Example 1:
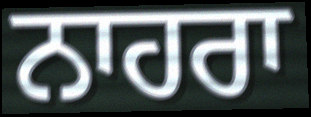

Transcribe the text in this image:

ਨਾਹਰਾ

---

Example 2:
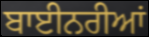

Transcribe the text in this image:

ਬਾਈਨਰੀਆਂ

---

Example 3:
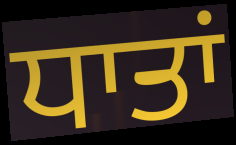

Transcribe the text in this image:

ਧਾਤਾਂ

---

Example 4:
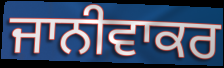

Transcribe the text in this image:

ਜਾਨੀਵਾਕਰ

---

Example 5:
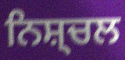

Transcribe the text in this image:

ਨਿਸ਼੍ਚਲ